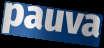
pauva